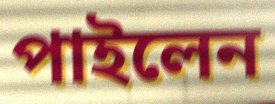
পাইলেন